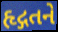
હૃદ્ગતને